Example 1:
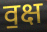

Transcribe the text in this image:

व॒क्ष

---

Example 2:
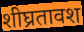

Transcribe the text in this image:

शीघ्रतावश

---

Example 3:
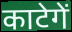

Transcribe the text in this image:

काटेगें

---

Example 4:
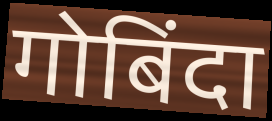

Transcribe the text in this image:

गोबिंदा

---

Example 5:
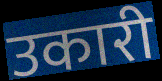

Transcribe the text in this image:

उकारी